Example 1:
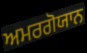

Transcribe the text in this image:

ਅਮਰਗੋਯਾਨ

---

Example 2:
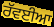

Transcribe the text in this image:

ਰੱਵਈਆ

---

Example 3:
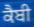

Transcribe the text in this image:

ਕੈਬੀ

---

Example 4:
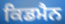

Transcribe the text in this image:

ਕਿਡਮੈਨ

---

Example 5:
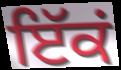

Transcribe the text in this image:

ਇੱਕਂ